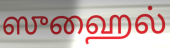
ஸுஹைல்